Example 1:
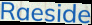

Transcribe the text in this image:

Raeside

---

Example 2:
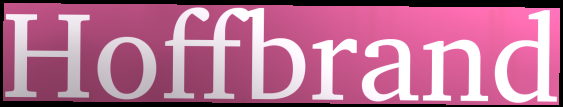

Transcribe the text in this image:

Hoffbrand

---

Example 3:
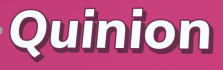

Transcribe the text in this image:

Quinion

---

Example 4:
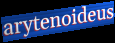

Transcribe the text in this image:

arytenoideus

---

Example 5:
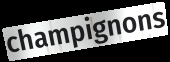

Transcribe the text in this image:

champignons